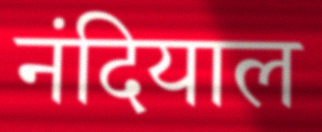
नंदियाल